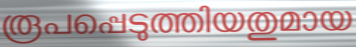
രൂപപ്പെടുത്തിയതുമായ